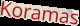
Koramas